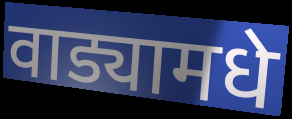
वाड्यामधे